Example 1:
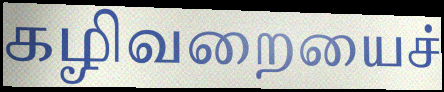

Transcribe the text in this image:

கழிவறையைச்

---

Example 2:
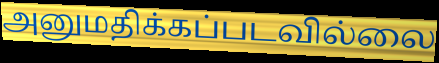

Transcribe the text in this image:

அனுமதிக்கப்படவில்லை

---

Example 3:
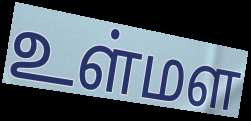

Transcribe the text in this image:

உள்மள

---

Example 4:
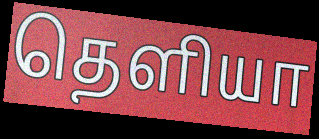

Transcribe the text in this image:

தெளியா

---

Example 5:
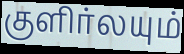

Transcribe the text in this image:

குளிர்லயும்